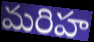
మరిహ